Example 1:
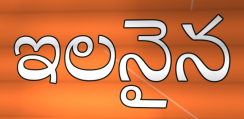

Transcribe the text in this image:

ఇలనైన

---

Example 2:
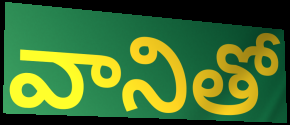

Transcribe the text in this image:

వానితో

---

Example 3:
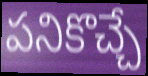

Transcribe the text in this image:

పనికొచ్చే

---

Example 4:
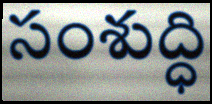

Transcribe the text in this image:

సంశుద్ధి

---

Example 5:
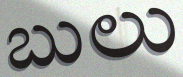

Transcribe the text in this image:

బులు